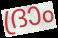
ദ്രാം